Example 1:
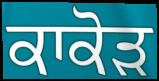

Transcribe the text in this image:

ਕਾਕੋੜ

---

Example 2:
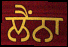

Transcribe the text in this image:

ਲੈਂਨਾ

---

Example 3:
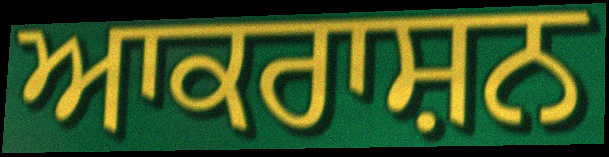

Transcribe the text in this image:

ਆਕਰਾਸ਼ਨ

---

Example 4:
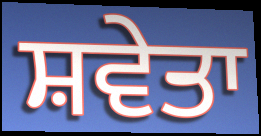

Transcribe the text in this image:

ਸ਼ਵੇਤਾ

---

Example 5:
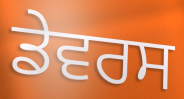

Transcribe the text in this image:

ਡੇਵਰਸ